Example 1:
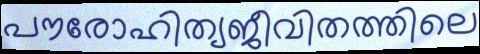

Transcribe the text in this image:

പൗരോഹിത്യജീവിതത്തിലെ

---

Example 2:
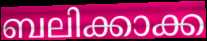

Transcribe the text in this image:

ബലിക്കാക്ക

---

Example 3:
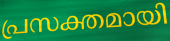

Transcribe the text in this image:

പ്രസക്തമായി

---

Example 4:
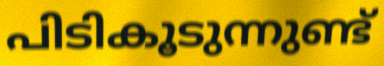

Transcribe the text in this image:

പിടികൂടുന്നുണ്ട്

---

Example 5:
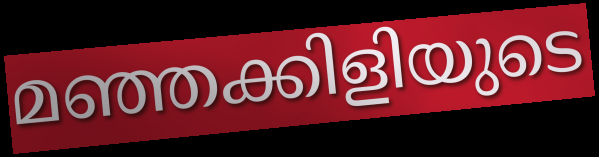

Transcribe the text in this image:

മഞ്ഞക്കിളിയുടെ